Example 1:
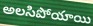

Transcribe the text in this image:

అలసిపోయాయి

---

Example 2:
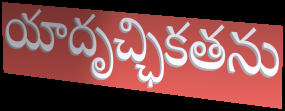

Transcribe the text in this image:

యాదృచ్ఛికతను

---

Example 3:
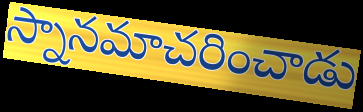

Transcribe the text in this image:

స్నానమాచరించాడు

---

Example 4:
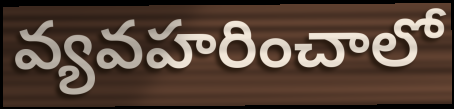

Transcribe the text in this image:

వ్యవహరించాలో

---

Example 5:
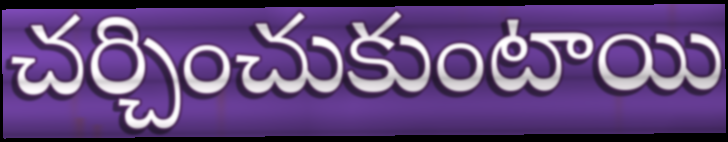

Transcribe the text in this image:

చర్చించుకుంటాయి